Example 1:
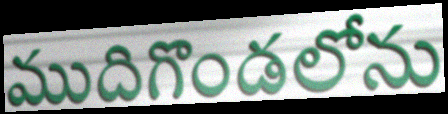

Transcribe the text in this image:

ముదిగొండలోను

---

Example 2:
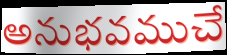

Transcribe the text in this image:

అనుభవముచే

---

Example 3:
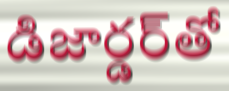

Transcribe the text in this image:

డిజార్డర్‌తో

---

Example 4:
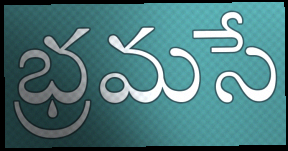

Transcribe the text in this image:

భ్రమసే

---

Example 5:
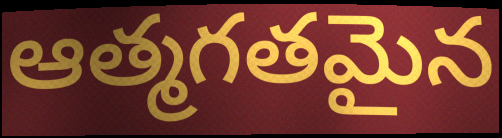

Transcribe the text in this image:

ఆత్మగతమైన